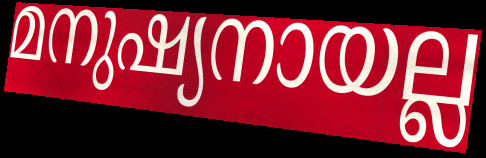
മനുഷ്യനായല്ല